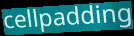
cellpadding